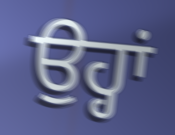
ਉਹ੍ਹਾਂ